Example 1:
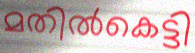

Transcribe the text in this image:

മതിൽകെട്ടി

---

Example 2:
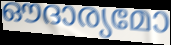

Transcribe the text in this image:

ഔദാര്യമോ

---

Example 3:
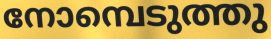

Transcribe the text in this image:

നോമ്പെടുത്തു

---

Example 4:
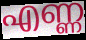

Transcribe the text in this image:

എണ്ണ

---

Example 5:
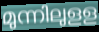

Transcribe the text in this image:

മുന്നിലുളള